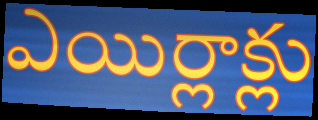
ఎయిర్లాక్లు